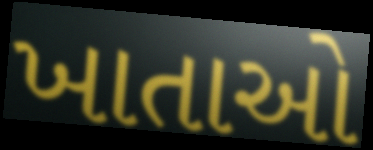
ખાતાઓ